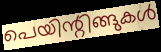
പെയിന്റിങ്ങുകൾ